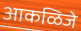
आकळिजे